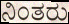
ನಿಂತರು